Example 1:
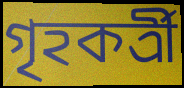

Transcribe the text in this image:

গৃহকর্ত্রী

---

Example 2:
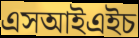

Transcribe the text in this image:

এসআইএইচ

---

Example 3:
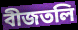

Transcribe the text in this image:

বীজতলি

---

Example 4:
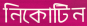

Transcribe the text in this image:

নিকোটিন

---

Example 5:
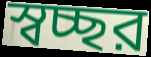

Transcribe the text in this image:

স্বচ্ছর